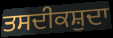
ਤਸਦੀਕਸ਼ੁਦਾ